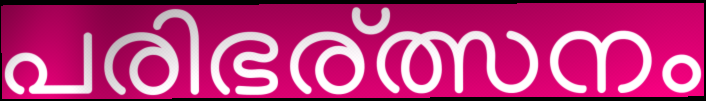
പരിഭര്ത്സനം